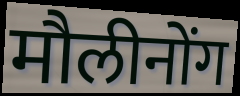
मौलीनोंग